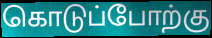
கொடுப்போற்கு